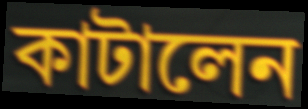
কাটালেন